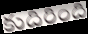
కుదిరింది